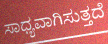
ಸಾಧ್ಯವಾಗಿಸುತ್ತದೆ